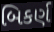
બિકર્ણ